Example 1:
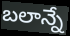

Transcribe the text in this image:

బలాన్నే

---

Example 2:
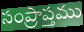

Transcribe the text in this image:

సంప్రాప్తము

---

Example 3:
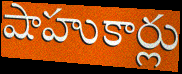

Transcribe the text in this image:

షాహుకార్లు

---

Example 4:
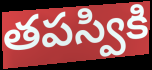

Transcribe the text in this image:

తపస్వికి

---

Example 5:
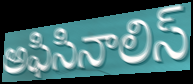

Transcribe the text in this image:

అఫిసినాలిస్